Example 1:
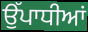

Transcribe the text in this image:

ਉੱਪਾਧੀਆਂ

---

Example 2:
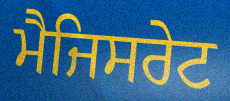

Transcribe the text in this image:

ਮੈਜਿਸਰੇਟ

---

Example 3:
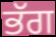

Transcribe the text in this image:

ਭੱਗ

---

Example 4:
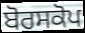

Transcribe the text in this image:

ਬੋਰਸਕੋਪ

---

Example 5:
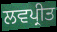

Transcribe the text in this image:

ਲਵਪ੍ਰੀਤ